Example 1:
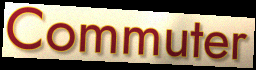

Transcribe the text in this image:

Commuter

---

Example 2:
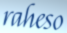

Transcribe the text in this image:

raheso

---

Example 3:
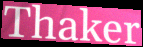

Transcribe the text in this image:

Thaker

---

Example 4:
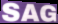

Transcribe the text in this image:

SAG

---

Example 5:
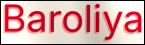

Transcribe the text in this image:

Baroliya